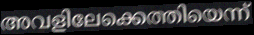
അവളിലേക്കെത്തിയെന്ന്